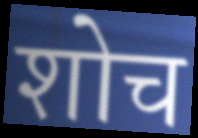
शोच